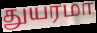
துயரமா